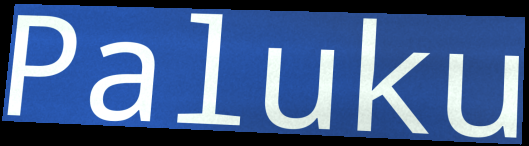
Paluku